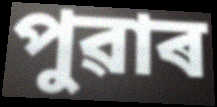
পুৱাৰ